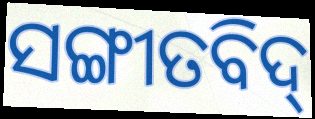
ସଙ୍ଗୀତବିଦ୍